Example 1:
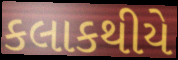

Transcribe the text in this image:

કલાકથીયે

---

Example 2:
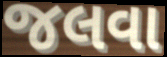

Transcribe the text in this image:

જલવા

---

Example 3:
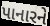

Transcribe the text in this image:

પાનારને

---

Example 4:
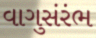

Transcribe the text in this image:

વાગુસંરંભ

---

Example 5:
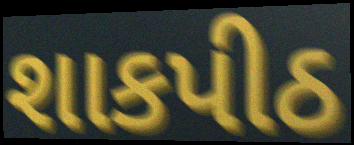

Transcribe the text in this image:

શાકપીઠ